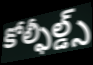
కోల్ఫీల్డ్స్